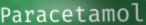
Paracetamol